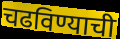
चढविण्याची